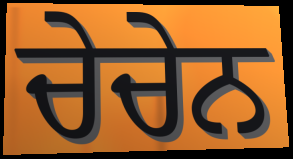
ਚੇਚੇਨ